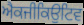
ਐਕਜੀਕਿਉਟਿਵ